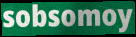
sobsomoy